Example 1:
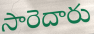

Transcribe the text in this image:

సారెదారు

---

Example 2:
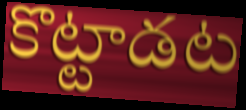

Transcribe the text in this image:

కొట్టాడట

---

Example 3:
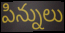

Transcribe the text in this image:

పిన్నులు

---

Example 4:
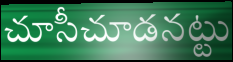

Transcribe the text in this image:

చూసీచూడనట్టు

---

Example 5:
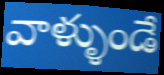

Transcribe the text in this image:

వాళ్ళుండే